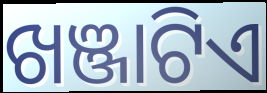
ଖଞ୍ଜାଟିଏ